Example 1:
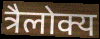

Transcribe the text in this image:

त्रैलोक्य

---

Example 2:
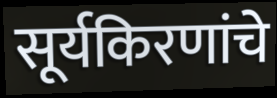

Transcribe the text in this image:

सूर्यकिरणांचे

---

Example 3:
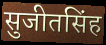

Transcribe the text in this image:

सुजीतसिंह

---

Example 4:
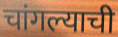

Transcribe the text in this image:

चांगल्याची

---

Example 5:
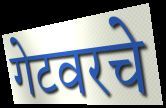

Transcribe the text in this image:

गेटवरचे